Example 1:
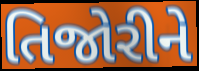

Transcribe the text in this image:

તિજોરીને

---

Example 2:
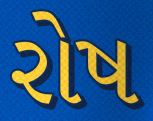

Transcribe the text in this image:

રોષ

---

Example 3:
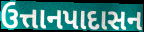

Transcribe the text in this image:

ઉત્તાનપાદાસન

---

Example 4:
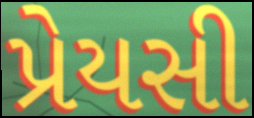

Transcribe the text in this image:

પ્રેયસી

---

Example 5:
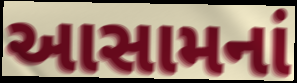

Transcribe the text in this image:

આસામનાં